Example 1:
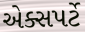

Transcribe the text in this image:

એક્સપર્ટે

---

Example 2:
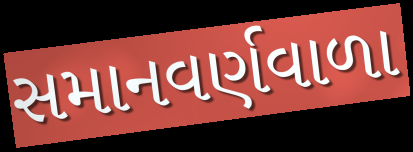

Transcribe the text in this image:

સમાનવર્ણવાળા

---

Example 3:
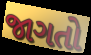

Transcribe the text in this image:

જાગતો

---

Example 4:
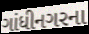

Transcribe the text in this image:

ગાંધીનગરના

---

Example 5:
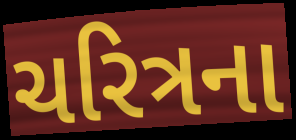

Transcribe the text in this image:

ચરિત્રના